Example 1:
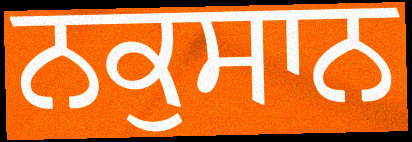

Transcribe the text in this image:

ਨਕੁਸਾਨ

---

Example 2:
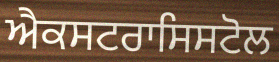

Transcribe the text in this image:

ਐਕਸਟਰਾਸਿਸਟੋਲ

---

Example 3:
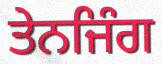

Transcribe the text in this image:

ਤੇਨਜਿੰਗ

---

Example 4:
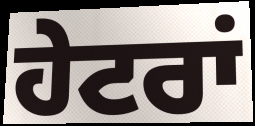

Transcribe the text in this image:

ਹੇਟਰਾਂ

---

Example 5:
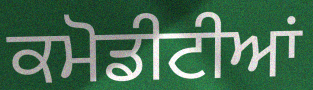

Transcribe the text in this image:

ਕਮੋਡੀਟੀਆਂ